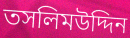
তসলিমউদ্দিন